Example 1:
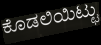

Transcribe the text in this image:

ಕೊಡಲಿಯಿಟ್ಟು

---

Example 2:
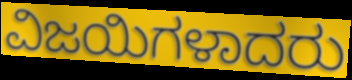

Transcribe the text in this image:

ವಿಜಯಿಗಳಾದರು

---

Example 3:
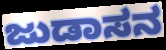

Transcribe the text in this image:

ಜುಡಾಸನ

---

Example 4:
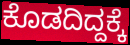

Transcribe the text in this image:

ಕೊಡದಿದ್ದಕ್ಕೆ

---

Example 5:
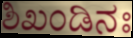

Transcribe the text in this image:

ಶಿಖಂಡಿನಃ